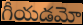
గీయడమో